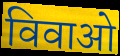
विवाओ